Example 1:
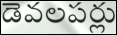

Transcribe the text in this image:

డెవలపర్లు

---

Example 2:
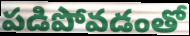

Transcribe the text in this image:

పడిపోవడంతో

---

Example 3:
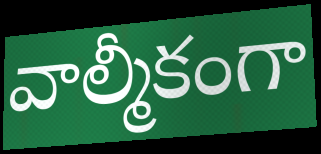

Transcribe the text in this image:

వాల్మీకంగా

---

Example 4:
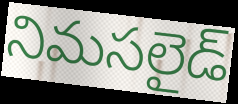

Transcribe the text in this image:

నిమసలైడ్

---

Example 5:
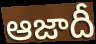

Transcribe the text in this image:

ఆజాదీ